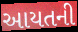
આયતની